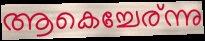
ആകെച്ചേര്ന്നു